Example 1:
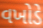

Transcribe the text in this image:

વખોડે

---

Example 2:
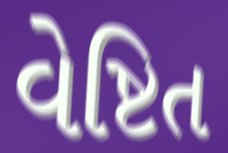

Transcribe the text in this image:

વેષ્ટિત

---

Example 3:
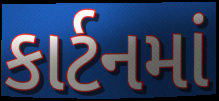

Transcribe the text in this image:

કાર્ટનમાં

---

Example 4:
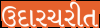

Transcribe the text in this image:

ઉદારચરીત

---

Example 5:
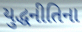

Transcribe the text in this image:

યુદ્ધનીતિના